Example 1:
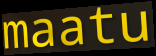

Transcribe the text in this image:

maatu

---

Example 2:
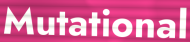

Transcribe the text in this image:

Mutational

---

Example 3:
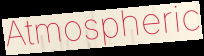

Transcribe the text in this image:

Atmospheric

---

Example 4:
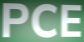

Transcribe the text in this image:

PCE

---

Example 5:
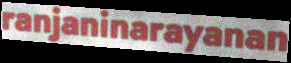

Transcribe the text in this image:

ranjaninarayanan